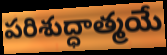
పరిశుద్ధాత్మయే